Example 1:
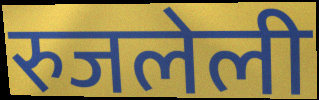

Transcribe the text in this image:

रुजलेली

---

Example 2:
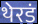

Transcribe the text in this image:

थेरडं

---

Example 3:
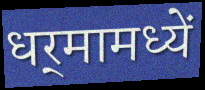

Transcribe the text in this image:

धर्मामध्यें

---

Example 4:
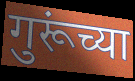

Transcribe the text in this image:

गुरूंच्या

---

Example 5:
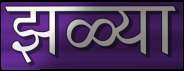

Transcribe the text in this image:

झळ्या